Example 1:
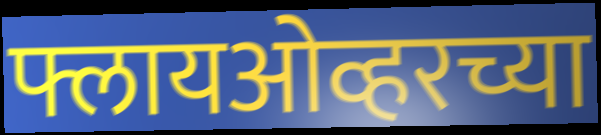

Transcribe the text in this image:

फ्लायओव्हरच्या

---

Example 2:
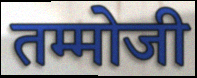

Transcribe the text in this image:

तम्मोजी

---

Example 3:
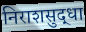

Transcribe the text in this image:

निराशसुद्धा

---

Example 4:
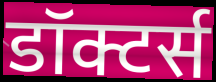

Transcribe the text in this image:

डॉक्टर्स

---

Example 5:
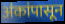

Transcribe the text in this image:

अंकांपासून